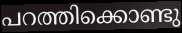
പറത്തിക്കൊണ്ടു